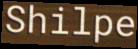
Shilpe